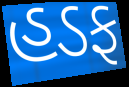
હડફ